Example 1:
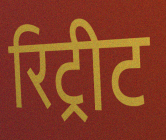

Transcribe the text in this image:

रिट्रीट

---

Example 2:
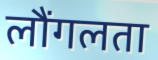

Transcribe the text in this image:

लौंगलता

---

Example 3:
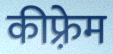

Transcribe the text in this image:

कीफ़्रेम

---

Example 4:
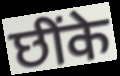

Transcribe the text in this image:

छींके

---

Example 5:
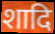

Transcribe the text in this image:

शादि